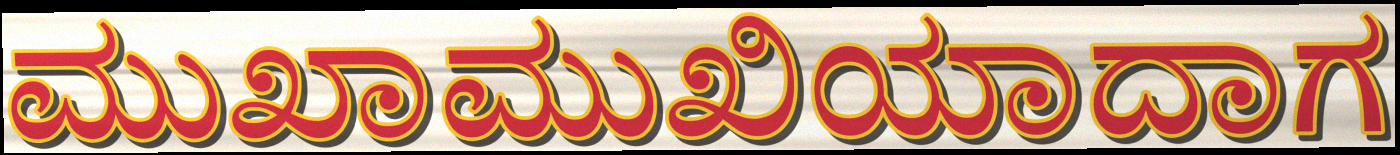
ಮುಖಾಮುಖಿಯಾದಾಗ